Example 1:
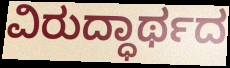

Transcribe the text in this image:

ವಿರುದ್ಧಾರ್ಥದ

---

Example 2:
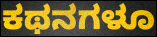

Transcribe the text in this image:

ಕಥನಗಳೂ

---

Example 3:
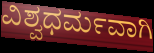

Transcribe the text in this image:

ವಿಶ್ವಧರ್ಮವಾಗಿ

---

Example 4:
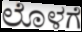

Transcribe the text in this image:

ಲೊಳಗೆ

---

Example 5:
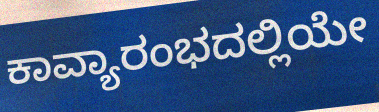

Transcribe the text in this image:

ಕಾವ್ಯಾರಂಭದಲ್ಲಿಯೇ